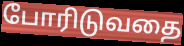
போரிடுவதை